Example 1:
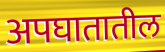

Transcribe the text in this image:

अपघातातील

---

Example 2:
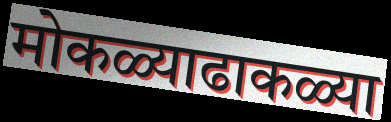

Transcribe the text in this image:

मोकळ्याढाकळ्या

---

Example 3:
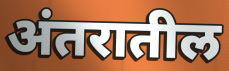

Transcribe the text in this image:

अंतरातील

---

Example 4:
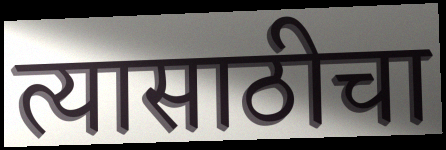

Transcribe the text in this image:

त्यासाठीचा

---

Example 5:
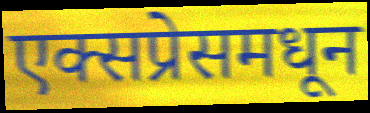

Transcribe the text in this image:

एक्सप्रेसमधून